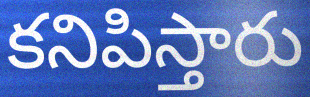
కనిపిస్తారు